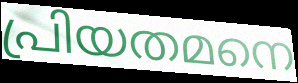
പ്രിയതമനെ